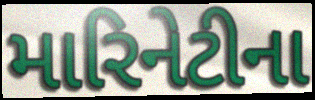
મારિનેટીના